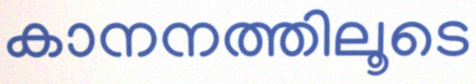
കാനനത്തിലൂടെ